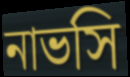
নাভসি